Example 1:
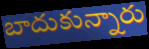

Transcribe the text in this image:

బాదుకున్నారు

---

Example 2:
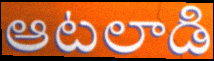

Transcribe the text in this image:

ఆటలాడి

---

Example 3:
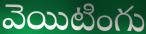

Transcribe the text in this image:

వెయిటింగు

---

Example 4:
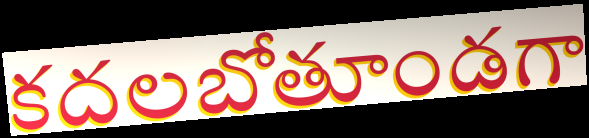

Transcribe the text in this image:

కదలబోతూండగా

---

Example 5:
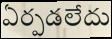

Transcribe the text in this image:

ఏర్పడలేదు